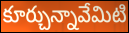
కూర్చున్నావేమిటి